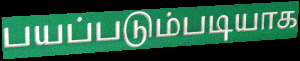
பயப்படும்படியாக